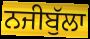
ਨਜੀਬੁੱਲਾ